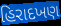
હિરાદખણ